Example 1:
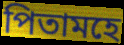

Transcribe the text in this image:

পিতামহে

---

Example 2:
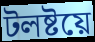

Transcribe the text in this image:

টলষ্টয়ে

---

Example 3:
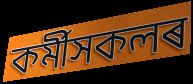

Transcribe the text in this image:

কৰ্মীসকলৰ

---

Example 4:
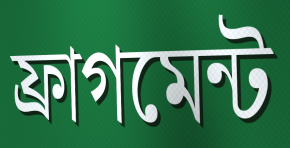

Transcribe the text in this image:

ফ্ৰাগমেন্ট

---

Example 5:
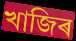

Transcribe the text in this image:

খাজিৰ